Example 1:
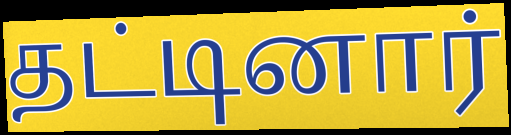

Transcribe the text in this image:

தட்டினார்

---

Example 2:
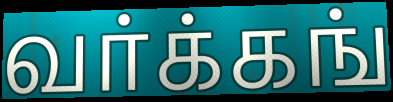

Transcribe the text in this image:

வர்க்கங்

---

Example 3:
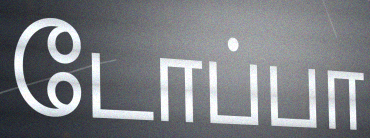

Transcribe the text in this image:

டோப்பா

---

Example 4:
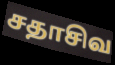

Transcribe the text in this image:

சதாசிவ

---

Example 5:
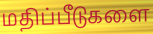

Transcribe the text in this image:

மதிப்பீடுகளை